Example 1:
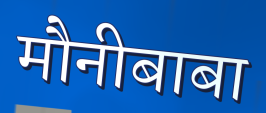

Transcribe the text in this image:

मौनीबाबा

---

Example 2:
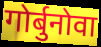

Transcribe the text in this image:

गोर्बुनोवा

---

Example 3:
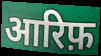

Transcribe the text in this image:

आरिफ़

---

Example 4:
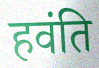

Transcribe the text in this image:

हवंति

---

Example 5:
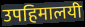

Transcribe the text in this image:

उपहिमालयी